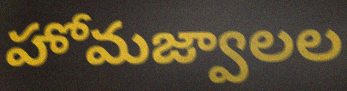
హోమజ్వాలల